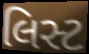
લિસ્ટ